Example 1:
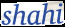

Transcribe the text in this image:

shahi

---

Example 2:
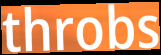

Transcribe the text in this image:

throbs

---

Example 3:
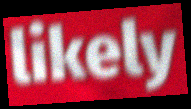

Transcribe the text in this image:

likely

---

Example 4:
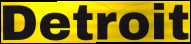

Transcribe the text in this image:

Detroit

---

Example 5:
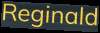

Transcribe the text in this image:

Reginald